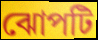
ঝোপটি